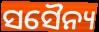
ସସୈନ୍ୟ